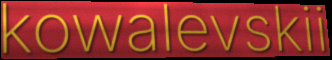
kowalevskii